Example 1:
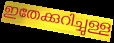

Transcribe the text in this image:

ഇതേക്കുറിച്ചുള്ള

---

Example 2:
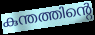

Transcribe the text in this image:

കുന്തത്തിന്റെ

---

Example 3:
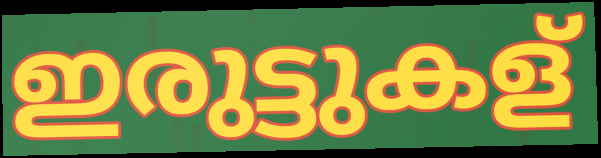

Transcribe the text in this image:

ഇരുട്ടുകള്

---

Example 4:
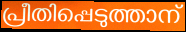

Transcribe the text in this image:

പ്രീതിപ്പെടുത്താന്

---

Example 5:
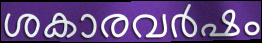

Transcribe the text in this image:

ശകാരവർഷം